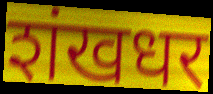
शंखधर